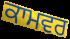
ਕਾਮਵਰ